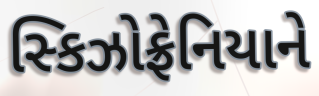
સ્કિઝોફ્રેનિયાને